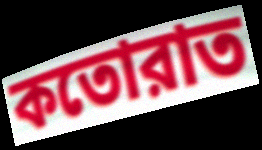
কতোরাত